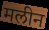
मलीन